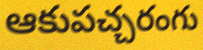
ఆకుపచ్చరంగు